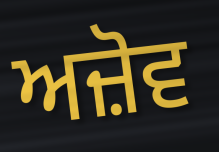
ਅਜ਼ੋਵ